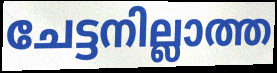
ചേട്ടനില്ലാത്ത